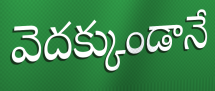
వెదక్కుండానే